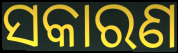
ସକାରଣ